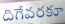
దిగేవరకూ